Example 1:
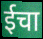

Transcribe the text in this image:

ईचा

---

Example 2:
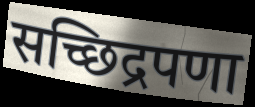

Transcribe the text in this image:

सच्छिद्रपणा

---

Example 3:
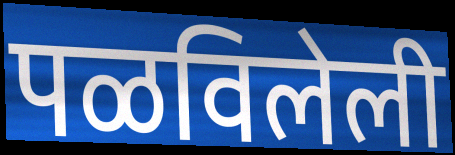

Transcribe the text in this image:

पळविलेली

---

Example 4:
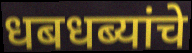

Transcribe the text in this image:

धबधब्यांचे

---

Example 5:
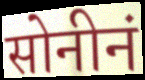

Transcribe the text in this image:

सोनीनं